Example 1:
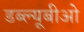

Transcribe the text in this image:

डब्ल्यूबीओ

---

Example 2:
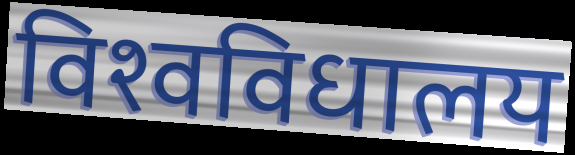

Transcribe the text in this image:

विश्वविधालय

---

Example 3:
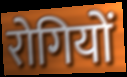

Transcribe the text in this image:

रोगियों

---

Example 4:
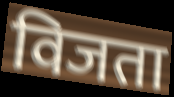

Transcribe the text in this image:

विजता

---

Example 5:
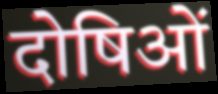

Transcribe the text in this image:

दोषिओं